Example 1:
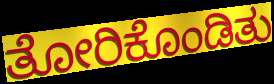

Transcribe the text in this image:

ತೋರಿಕೊಂಡಿತು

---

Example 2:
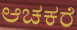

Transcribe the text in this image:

ಆಚಕರೆ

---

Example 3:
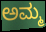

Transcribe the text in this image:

ಅಮ್ಮ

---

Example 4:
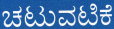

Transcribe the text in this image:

ಚಟುವಟಿಕೆ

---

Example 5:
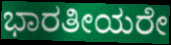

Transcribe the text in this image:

ಭಾರತೀಯರೇ